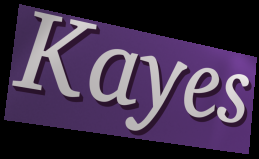
Kayes